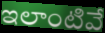
ఇలాంటివే